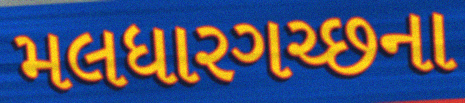
મલધારગચ્છના